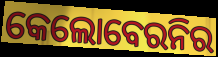
କେଲୋବେରନିର